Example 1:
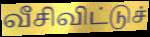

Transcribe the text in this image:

வீசிவிட்டுச்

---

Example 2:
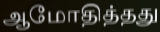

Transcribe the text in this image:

ஆமோதித்தது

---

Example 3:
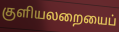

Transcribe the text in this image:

குளியலறையைப்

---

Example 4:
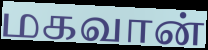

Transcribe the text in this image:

மகவான்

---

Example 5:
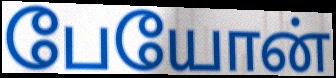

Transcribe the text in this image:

பேயோன்